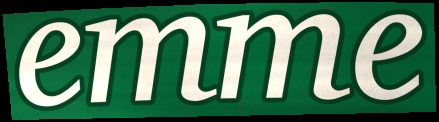
emme